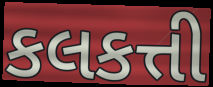
કલકત્તી